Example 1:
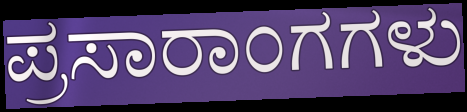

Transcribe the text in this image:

ಪ್ರಸಾರಾಂಗಗಳು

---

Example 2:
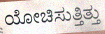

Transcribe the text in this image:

ಯೋಚಿಸುತ್ತಿತ್ತು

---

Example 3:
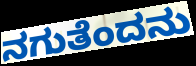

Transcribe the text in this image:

ನಗುತೆಂದನು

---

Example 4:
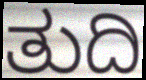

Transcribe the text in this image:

ತುದಿ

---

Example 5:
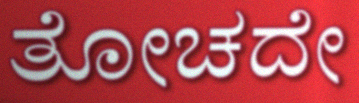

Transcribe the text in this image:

ತೋಚದೇ